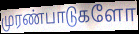
முரண்பாடுகளோ